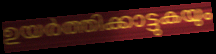
ഉയർത്തിക്കാട്ടുകയും